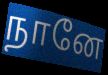
நானே